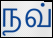
நவ்